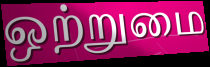
ஒற்றுமை